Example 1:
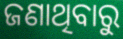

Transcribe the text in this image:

ଜଣାଥିବାରୁ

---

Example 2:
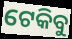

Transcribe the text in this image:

ଟେକିବୁ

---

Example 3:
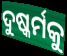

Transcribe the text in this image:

ଦୁଷ୍କର୍ମକୁ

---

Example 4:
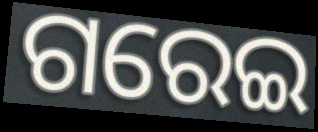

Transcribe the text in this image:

ଗରେଇ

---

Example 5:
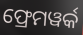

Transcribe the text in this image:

ଫ୍ରେମୱର୍କ